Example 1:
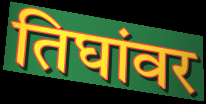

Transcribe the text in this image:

तिघांवर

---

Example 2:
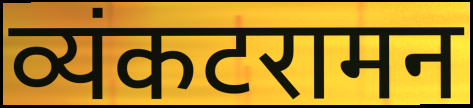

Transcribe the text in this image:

व्यंकटरामन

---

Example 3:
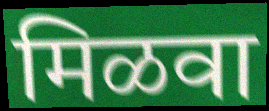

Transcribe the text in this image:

मिळवा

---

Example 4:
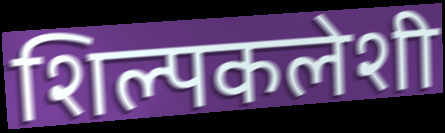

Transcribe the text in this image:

शिल्पकलेशी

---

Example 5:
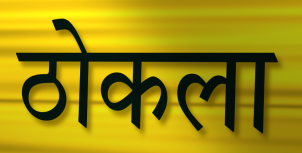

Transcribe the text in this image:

ठोकला